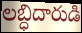
లబ్ధిదారుడి